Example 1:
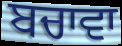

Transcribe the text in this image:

ਬਚਾਵਾ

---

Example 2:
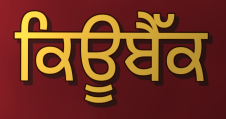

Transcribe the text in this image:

ਕਿਊਬੈੱਕ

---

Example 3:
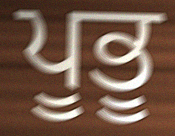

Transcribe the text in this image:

ਪੂਭੂ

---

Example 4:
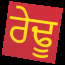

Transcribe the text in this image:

ਰੇਢੂ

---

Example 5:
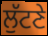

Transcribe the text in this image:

ਲੁੱਟਣੇ